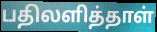
பதிலளித்தாள்